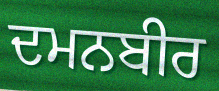
ਦਮਨਬੀਰ